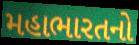
મહાભારતનો